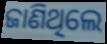
ଜାଣିଥିଲେ